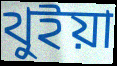
থুইয়া